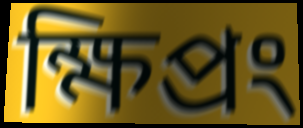
ক্ষিপ্রং